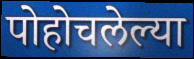
पोहोचलेल्या